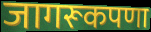
जागरूकपणा